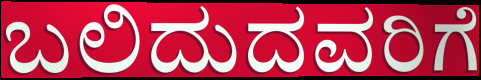
ಬಲಿದುದವರಿಗೆ